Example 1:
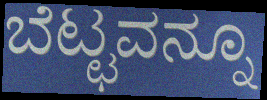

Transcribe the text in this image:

ಬೆಟ್ಟವನ್ನೂ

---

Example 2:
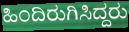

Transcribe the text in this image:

ಹಿಂದಿರುಗಿಸಿದ್ದರು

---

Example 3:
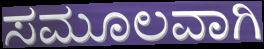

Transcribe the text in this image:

ಸಮೂಲವಾಗಿ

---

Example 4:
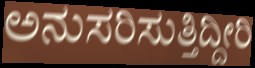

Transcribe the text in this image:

ಅನುಸರಿಸುತ್ತಿದ್ದೀರಿ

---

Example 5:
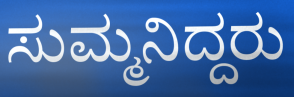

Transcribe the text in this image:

ಸುಮ್ಮನಿದ್ದರು